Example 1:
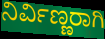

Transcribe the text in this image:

ನಿರ್ವಿಣ್ಣರಾಗಿ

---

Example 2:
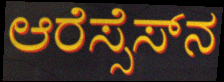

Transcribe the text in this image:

ಆರೆಸ್ಸೆಸ್‌ನ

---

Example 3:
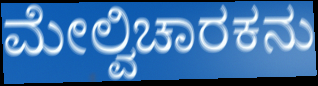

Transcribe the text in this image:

ಮೇಲ್ವಿಚಾರಕನು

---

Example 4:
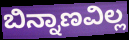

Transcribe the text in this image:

ಬಿನ್ನಾಣವಿಲ್ಲ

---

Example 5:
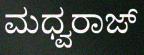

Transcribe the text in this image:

ಮಧ್ವರಾಜ್